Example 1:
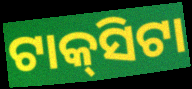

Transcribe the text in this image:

ଟାକ୍‌ସିଟା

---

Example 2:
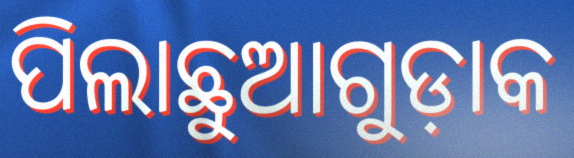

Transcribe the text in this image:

ପିଲାଛୁଆଗୁଡ଼ାକ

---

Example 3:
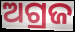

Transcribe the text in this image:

ଅଗ୍ରଜ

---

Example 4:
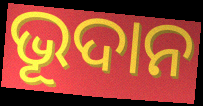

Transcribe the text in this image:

ଭୂଦାନ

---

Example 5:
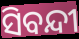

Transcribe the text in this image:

ସିବନ୍ଦୀ